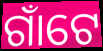
ଗାଁଟେ